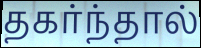
தகர்ந்தால்